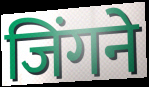
जिंगने